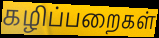
கழிப்பறைகள்